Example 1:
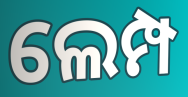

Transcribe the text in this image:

ଲେମ୍ପ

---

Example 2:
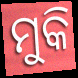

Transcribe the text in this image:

ମୁକି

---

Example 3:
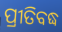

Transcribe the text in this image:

ପ୍ରୀତିବଦ୍ଧ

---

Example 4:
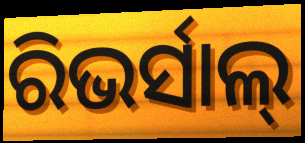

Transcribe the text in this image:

ରିଭର୍ସାଲ୍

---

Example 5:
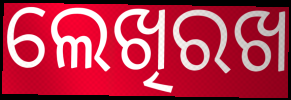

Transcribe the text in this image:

ଲେଖିରଖ